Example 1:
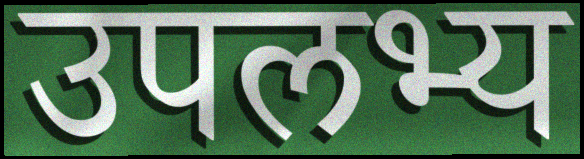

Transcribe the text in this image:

उपलभ्य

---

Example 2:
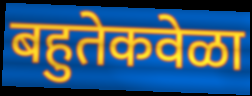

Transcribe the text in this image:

बहुतेकवेळा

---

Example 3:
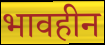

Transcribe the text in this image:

भावहीन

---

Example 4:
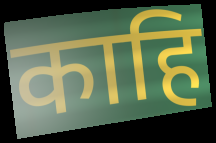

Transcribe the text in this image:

काहि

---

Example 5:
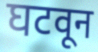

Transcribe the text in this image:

घटवून